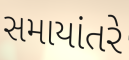
સમાયાંતરે